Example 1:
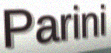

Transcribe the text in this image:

Parini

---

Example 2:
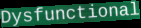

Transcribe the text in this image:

Dysfunctional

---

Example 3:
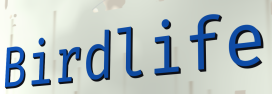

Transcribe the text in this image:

Birdlife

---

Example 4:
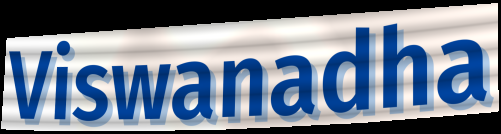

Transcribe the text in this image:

Viswanadha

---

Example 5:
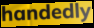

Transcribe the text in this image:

handedly